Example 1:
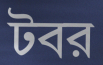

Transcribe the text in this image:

টবর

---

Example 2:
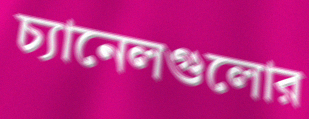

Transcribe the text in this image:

চ্যানেলগুলোর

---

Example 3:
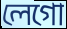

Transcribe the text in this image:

লেগো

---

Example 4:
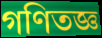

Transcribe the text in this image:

গণিতজ্ঞ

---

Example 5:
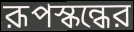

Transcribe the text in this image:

রূপস্কন্ধের